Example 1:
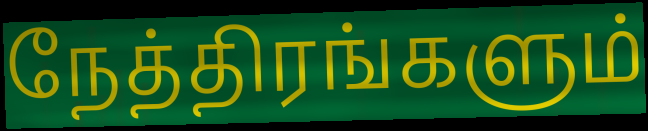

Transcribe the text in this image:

நேத்திரங்களும்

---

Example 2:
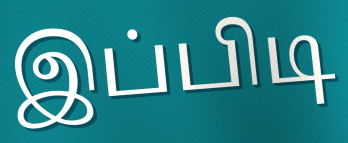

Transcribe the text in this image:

இப்பிடி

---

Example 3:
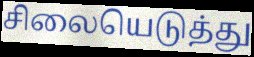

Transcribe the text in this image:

சிலையெடுத்து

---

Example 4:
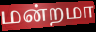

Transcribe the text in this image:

மன்றமா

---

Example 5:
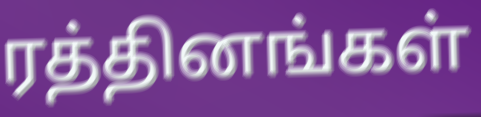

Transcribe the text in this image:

ரத்தினங்கள்